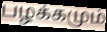
பழக்கமும்